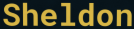
Sheldon